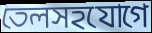
তেলসহযোগে